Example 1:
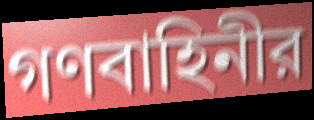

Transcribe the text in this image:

গণবাহিনীর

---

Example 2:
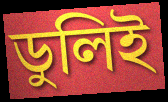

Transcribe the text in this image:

ডুলিই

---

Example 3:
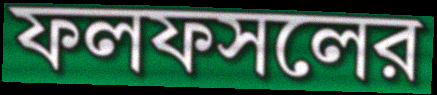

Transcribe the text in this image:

ফলফসলের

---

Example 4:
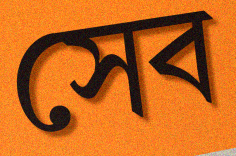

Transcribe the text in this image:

সেব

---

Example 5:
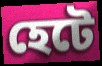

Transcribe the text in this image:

হেটে